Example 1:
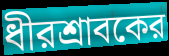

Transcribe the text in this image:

ধীরশ্রাবকের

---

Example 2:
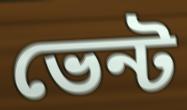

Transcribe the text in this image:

ভেন্ট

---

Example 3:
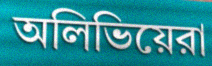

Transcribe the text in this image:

অলিভিয়েরা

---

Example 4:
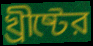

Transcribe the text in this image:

খ্রীষ্টের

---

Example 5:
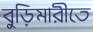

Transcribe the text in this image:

বুড়িমারীতে